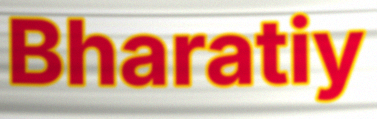
Bharatiy